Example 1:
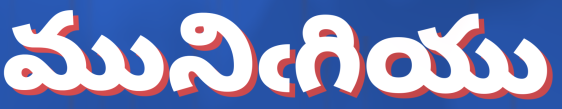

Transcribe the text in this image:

మునిఁగియు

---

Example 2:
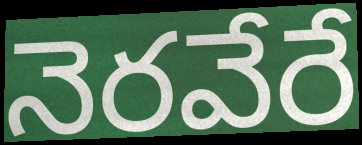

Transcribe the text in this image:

నెరవేరే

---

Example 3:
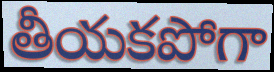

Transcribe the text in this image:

తీయకపోగా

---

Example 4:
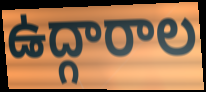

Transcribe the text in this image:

ఉద్గారాల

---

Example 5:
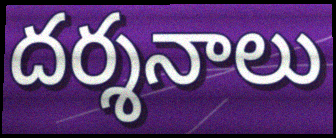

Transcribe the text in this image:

దర్శనాలు